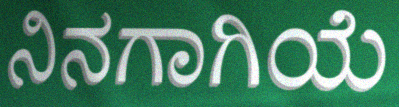
ನಿನಗಾಗಿಯೆ